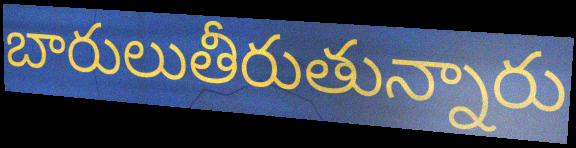
బారులుతీరుతున్నారు